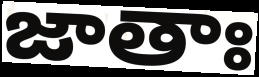
జాతాః